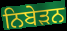
ਨਿਬੇੜਨ